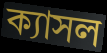
ক্যাসল